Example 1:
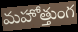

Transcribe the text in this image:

మహోత్తుంగ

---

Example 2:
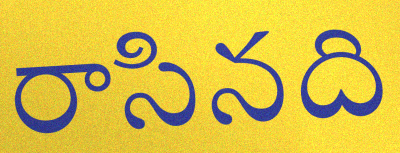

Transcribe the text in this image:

రాసినది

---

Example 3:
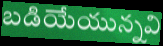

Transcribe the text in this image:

బడియేయున్నవి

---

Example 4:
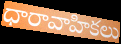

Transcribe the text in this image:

ధారావాహికలు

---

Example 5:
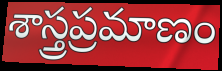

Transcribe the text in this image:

శాస్త్రప్రమాణం